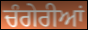
ਚੰਗੇਰੀਆਂ